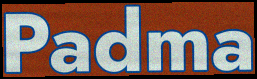
Padma